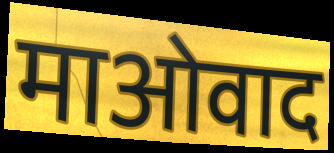
माओवाद